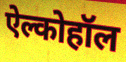
ऐल्कोहॉल